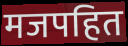
मजपहित